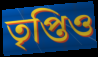
তৃপ্তিও